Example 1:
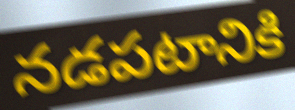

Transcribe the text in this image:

నడపటానికి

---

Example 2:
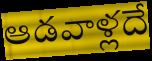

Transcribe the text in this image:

ఆడవాళ్లదే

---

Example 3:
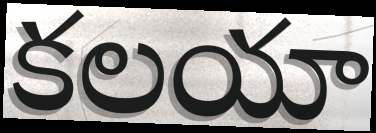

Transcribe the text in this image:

కలయా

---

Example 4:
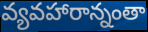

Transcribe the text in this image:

వ్యవహారాన్నంతా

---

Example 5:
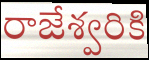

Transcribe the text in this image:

రాజేశ్వరికి